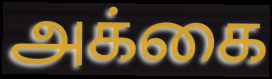
அக்கை